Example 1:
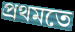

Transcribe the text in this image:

প্ৰথমতে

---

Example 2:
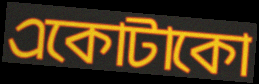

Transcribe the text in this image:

একোটাকো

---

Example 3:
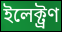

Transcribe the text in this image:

ইলেক্ট্ৰণ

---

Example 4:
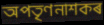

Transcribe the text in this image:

অপতৃণনাশকৰ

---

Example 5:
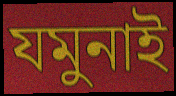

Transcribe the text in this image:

যমুনাই